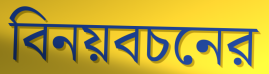
বিনয়বচনের